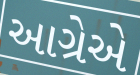
આગ્રેએ